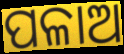
ପଳାଅ